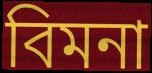
বিমনা